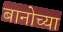
बानोच्या